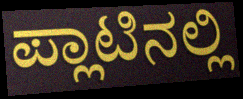
ಪ್ಲಾಟಿನಲ್ಲಿ